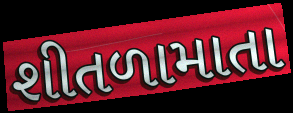
શીતળામાતા